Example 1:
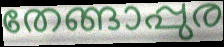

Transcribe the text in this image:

തേങ്ങാപ്പുര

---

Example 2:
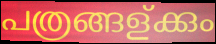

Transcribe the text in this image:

പത്രങ്ങള്ക്കും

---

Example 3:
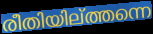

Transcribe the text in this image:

രീതിയില്ത്തന്നെ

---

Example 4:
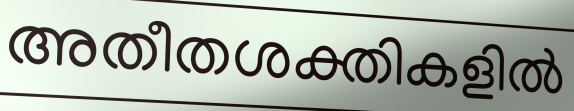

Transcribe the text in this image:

അതീതശക്തികളിൽ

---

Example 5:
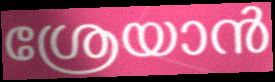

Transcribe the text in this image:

ശ്രേയാൻ